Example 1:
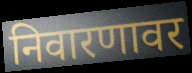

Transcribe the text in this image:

निवारणावर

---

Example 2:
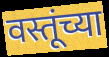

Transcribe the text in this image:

वस्तूंच्या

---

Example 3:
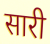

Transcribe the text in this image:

सारी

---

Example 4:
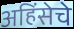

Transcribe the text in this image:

अहिंसेचे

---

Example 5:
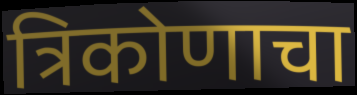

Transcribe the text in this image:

त्रिकोणाचा